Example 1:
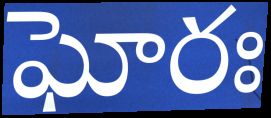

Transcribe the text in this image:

ఘోరః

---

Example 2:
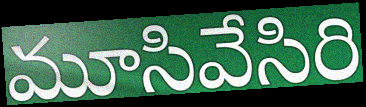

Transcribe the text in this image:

మూసివేసిరి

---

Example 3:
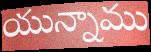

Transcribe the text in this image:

యున్నాము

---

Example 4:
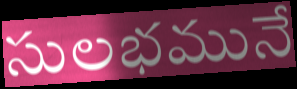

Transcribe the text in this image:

సులభమునే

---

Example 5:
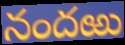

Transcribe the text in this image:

నందఱు